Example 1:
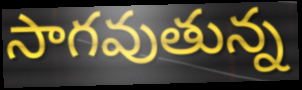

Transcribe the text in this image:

సాగవుతున్న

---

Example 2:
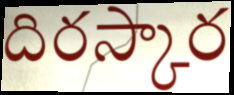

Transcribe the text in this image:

దిరస్కార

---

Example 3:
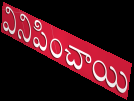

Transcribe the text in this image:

వినిపించాయి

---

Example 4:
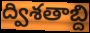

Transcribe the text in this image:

ద్విశతాబ్ది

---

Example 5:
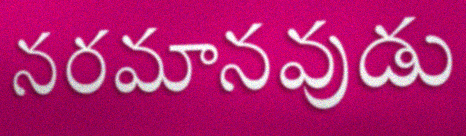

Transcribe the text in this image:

నరమానవుడు